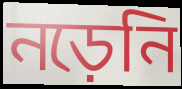
নড়েনি